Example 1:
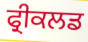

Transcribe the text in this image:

ਫ੍ਰੀਕਲਡ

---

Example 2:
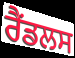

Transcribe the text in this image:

ਰੈਂਡਲਸ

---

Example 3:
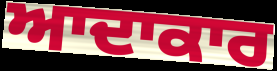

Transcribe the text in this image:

ਆਦਾਕਾਰ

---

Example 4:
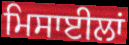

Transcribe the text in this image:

ਮਿਸਾਈਲਾਂ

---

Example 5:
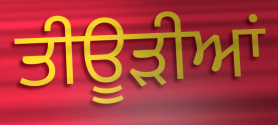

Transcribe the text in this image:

ਤੀਊੜੀਆਂ